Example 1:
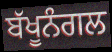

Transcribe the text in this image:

ਬੱਖੂਨੰਗਲ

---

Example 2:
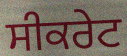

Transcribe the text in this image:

ਸੀਕਰੇਟ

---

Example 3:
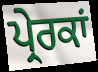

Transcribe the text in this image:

ਪ੍ਰੇਰਕਾਂ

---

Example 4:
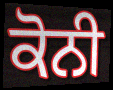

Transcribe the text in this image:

ਕੋਨੀ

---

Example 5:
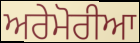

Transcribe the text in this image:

ਅਰੇਮੋਰੀਆ